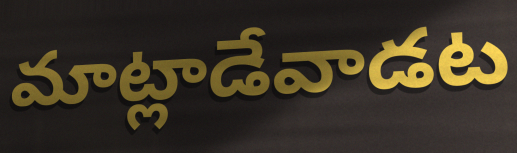
మాట్లాడేవాడట